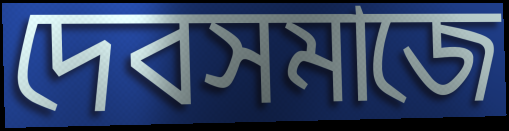
দেবসমাজে